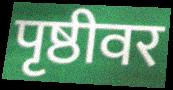
पृष्ठीवर